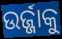
ଉର୍ଜ୍ଜାକୁ